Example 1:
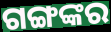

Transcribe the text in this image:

ଗଙ୍ଗଙ୍କର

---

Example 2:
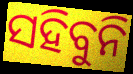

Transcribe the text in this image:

ସହିବୁନି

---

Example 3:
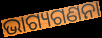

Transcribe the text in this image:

ଭାଗ୍ୟଗଣନା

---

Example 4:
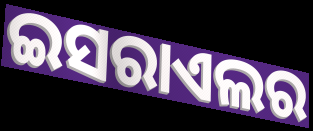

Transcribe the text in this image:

ଇସରାଏଲର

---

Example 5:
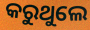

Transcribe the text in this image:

କରୁଥୁଲେ